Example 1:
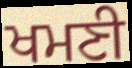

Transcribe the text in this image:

ਖਮਣੀ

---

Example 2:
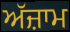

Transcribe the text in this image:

ਅੱਜ਼ਾਮ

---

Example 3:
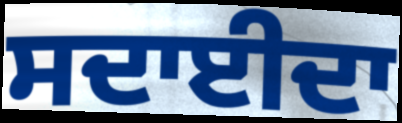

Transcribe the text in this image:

ਸਦਾਈਦਾ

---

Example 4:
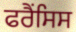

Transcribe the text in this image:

ਫਰੈਂਸਿਸ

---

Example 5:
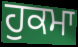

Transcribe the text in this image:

ਹੁਕਮਾ